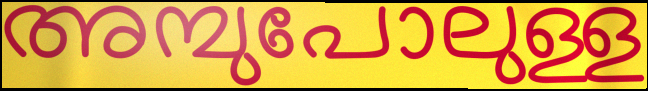
അമ്പുപോലുള്ള